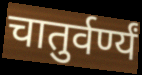
चातुर्वर्ण्यं